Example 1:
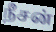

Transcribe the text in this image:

நீசன்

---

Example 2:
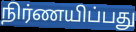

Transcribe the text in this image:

நிர்ணயிப்பது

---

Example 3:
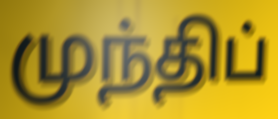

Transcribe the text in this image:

முந்திப்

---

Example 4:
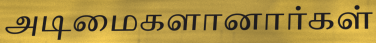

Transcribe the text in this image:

அடிமைகளானார்கள்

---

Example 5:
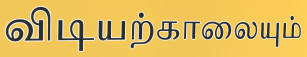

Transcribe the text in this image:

விடியற்காலையும்